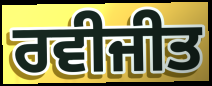
ਰਵੀਜੀਤ